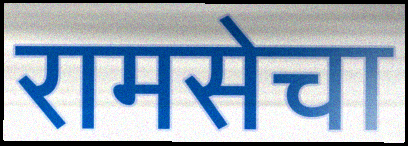
रामसेचा